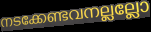
നടക്കേണ്ടവനല്ലല്ലോ